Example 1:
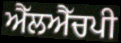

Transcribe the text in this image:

ਐੱਲਐੱਚਪੀ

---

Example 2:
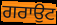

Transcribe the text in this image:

ਗਰਾਉਟ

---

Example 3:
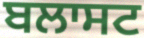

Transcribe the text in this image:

ਬਲਾਸਟ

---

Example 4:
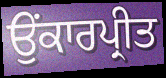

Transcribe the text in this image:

ਉਂਕਾਰਪ੍ਰੀਤ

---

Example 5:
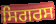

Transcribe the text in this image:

ਸਿਗਰਸ